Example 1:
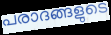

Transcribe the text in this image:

പരാദങ്ങളുടെ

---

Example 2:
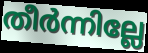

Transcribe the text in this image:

തീർന്നില്ലേ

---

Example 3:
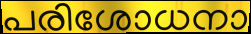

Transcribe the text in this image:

പരിശോധനാ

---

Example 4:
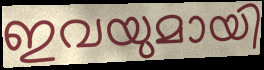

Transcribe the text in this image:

ഇവയുമായി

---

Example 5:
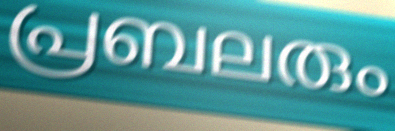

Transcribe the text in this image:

പ്രബലരും